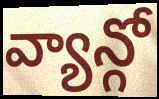
వ్యాన్గో